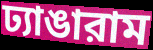
ঢ্যাঙারাম